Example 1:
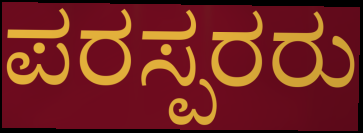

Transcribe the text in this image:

ಪರಸ್ಪರರು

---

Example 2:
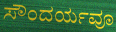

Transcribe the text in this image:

ಸೌಂದರ್ಯವೂ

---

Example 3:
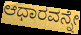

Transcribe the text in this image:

ಆಧಾರವನ್ನೇ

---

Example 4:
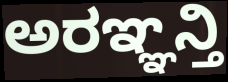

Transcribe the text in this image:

ಅರಞ್ಞನ್ತಿ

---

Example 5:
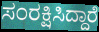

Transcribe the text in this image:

ಸಂರಕ್ಷಿಸಿದ್ದಾರೆ